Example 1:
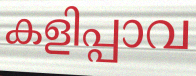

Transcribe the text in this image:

കളിപ്പാവ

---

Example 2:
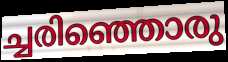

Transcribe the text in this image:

ച്ചരിഞ്ഞൊരു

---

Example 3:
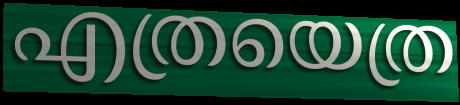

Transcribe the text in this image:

എത്രയെത്ര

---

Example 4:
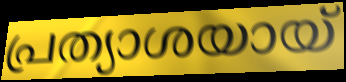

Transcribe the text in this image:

പ്രത്യാശയായ്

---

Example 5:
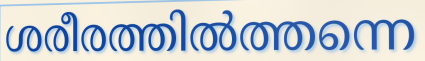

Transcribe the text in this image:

ശരീരത്തിൽത്തന്നെ